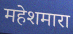
महेशमारा